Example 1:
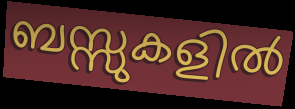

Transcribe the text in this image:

ബസ്സുകളിൽ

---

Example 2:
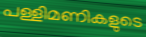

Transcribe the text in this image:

പള്ളിമണികളുടെ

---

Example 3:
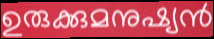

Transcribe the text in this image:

ഉരുക്കുമനുഷ്യൻ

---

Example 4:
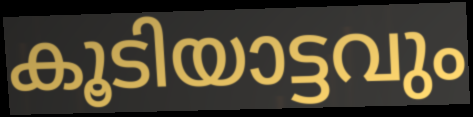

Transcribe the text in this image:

കൂടിയാട്ടവും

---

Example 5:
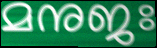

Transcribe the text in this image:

മനുജഃ